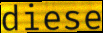
diese